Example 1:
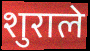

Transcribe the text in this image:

शुराले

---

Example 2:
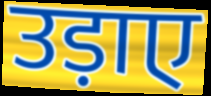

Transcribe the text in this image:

उड़ाए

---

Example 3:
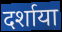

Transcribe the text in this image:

दर्शाया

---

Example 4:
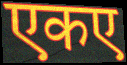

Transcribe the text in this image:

एकए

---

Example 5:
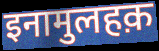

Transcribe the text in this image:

इनामुलहक़